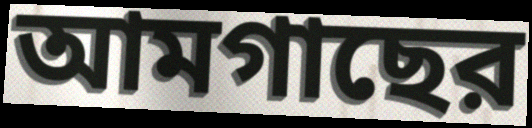
আমগাছের